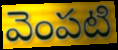
వెంపటి